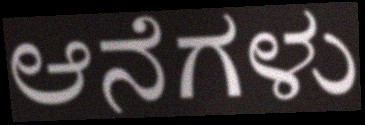
ಆನೆಗಳು